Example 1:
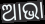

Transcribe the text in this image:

ଆଭା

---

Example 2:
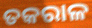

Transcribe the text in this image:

ତକରାଳ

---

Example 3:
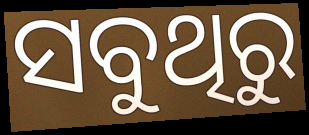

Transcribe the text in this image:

ସବୁଥିରୁ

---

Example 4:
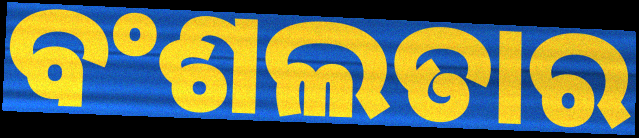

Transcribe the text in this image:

ବଂଶଲତାର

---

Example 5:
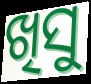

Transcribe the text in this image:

ଖିସୁ